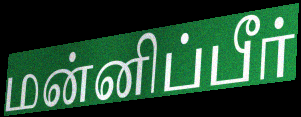
மன்னிப்பீர்